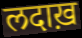
लदाख़